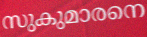
സുകുമാരനെ